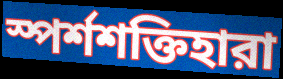
স্পর্শশক্তিহারা